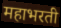
महाभरती